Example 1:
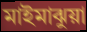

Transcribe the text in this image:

মাইমাঝুয়া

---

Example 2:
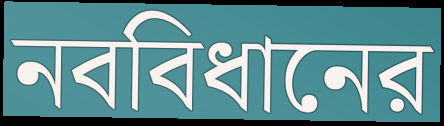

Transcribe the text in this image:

নববিধানের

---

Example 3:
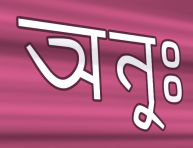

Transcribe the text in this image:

অনুঃ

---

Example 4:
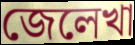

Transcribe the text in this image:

জেলেখা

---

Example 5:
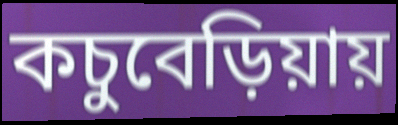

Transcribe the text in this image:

কচুবেড়িয়ায়